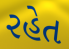
રહેત